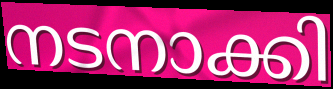
നടനാക്കി